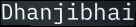
Dhanjibhai